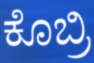
ಕೊಬ್ರಿ